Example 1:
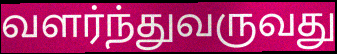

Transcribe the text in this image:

வளர்ந்துவருவது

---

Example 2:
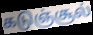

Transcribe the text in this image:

கடுஞ்சூல்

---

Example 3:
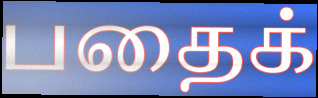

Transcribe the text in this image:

பதைக்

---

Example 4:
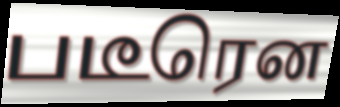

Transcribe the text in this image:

படீரென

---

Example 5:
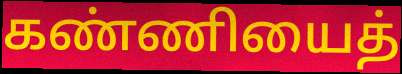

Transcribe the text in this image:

கண்ணியைத்